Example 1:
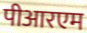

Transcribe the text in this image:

पीआरएम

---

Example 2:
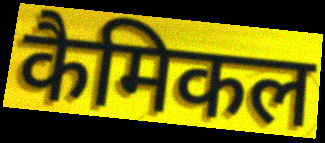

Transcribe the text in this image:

कैमिकल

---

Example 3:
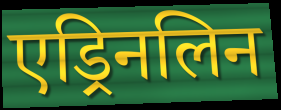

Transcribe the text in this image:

एड्रिनलिन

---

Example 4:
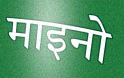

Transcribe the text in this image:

माइनो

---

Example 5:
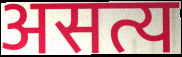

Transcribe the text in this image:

असत्य